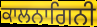
ਕਾਲਨਾਗਿਨੀ